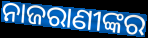
ନାଜରାଣୀଙ୍କର